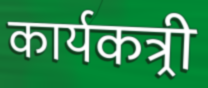
कार्यकत्र्री